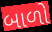
બાળો